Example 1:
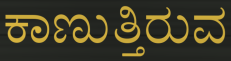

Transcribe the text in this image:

ಕಾಣುತ್ತಿರುವ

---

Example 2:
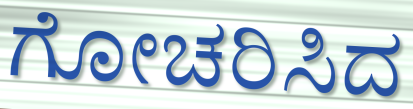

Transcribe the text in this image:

ಗೋಚರಿಸಿದ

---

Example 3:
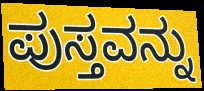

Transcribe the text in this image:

ಪುಸ್ತವನ್ನು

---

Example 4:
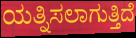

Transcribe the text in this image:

ಯತ್ನಿಸಲಾಗುತ್ತಿದೆ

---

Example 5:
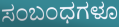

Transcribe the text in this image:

ಸಂಬಂಧಗಳೂ